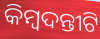
କିମ୍ୱଦନ୍ତୀଟି